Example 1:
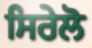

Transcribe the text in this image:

ਸਿਰੇਲੋ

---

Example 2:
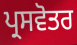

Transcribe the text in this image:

ਪ੍ਰਸਵੋਤਰ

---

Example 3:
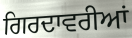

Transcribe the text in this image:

ਗਿਰਦਾਵਰੀਆਂ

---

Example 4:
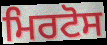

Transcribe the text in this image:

ਮਿਰਟੋਸ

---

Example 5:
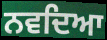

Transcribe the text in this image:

ਨਵਦਿਆ